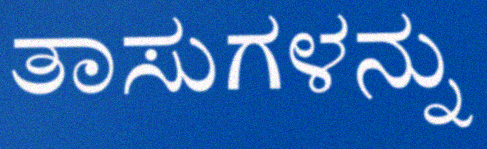
ತಾಸುಗಳನ್ನು